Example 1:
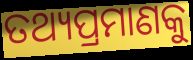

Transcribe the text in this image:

ତଥ୍ୟପ୍ରମାଣକୁ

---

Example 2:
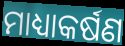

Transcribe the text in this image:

ମାଧ୍ୟାକର୍ଷଣ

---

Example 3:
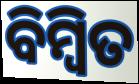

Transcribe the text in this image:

ବିମ୍ବିତ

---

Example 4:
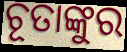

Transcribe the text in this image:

ଚୂତାଙ୍କୁର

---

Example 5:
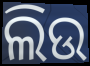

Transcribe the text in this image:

ଲିଉ